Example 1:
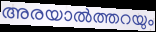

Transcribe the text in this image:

അരയാൽത്തറയും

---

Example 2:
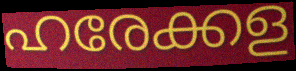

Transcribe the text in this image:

ഹരേക്കള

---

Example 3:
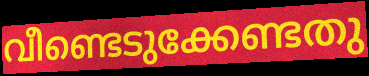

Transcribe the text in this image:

വീണ്ടെടുക്കേണ്ടതു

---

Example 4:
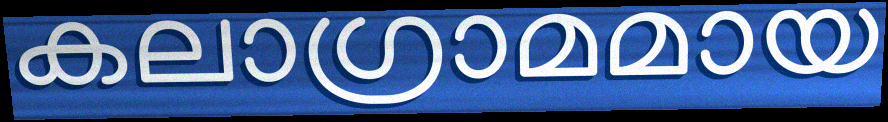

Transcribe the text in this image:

കലാഗ്രാമമായ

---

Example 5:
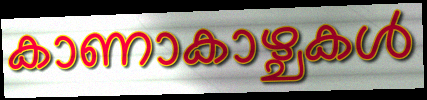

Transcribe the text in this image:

കാണാകാഴ്ചകൾ